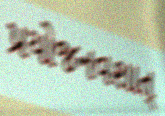
પ્રયોજનવશાત્